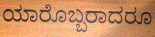
ಯಾರೊಬ್ಬರಾದರೂ